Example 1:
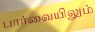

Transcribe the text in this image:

பார்வையிலும்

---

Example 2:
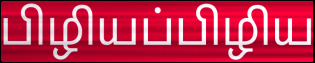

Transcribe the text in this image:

பிழியப்பிழிய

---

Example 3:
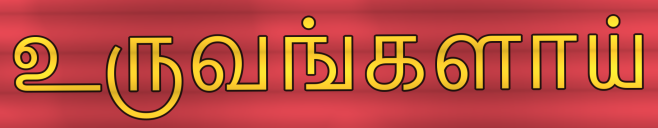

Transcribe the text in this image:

உருவங்களாய்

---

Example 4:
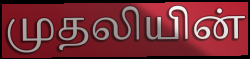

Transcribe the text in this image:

முதலியின்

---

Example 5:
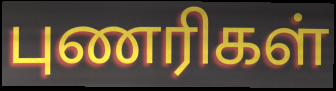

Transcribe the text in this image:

புணரிகள்